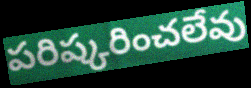
పరిష్కరించలేవు